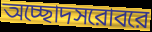
অচ্ছোদসরোবরে